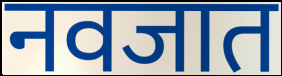
नवजात